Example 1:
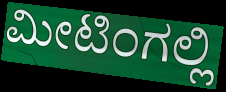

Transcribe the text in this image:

ಮೀಟಿಂಗಲ್ಲಿ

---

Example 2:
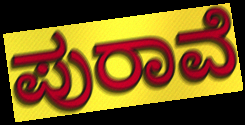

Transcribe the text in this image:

ಪುರಾವೆ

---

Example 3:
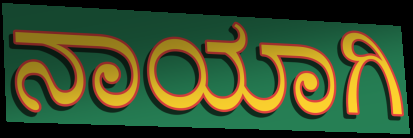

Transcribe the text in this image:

ನಾಯಾಗಿ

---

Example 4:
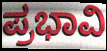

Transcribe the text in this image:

ಪ್ರಭಾವಿ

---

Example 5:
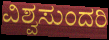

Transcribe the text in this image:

ವಿಶ್ವಸುಂದರಿ